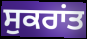
ਸੁਕਰਾਂਤ